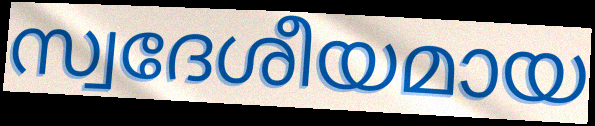
സ്വദേശീയമായ